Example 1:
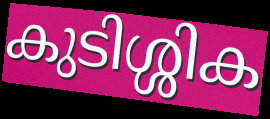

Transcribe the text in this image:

കുടിശ്ശിക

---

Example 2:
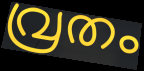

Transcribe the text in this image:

വ്രതം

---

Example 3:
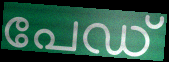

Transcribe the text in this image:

പേഡ്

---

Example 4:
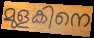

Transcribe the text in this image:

മുളകിനെ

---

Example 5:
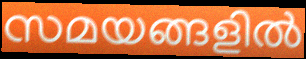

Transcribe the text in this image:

സമയങ്ങളിൽ